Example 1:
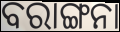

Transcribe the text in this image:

ବରାଙ୍ଗନା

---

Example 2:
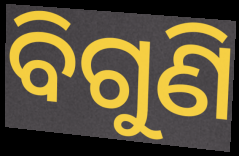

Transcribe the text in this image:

ବିଗୁଣି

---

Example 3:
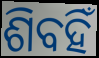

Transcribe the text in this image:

ଶିବହିଁ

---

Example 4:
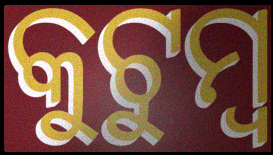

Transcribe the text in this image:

କୁଟୁମ୍ଵ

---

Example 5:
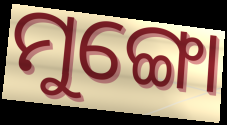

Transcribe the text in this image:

ମୁଙ୍ଗୋ